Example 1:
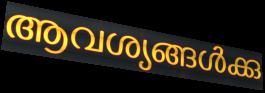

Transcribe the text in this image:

ആവശ്യങ്ങൾക്കു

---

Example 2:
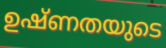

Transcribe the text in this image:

ഉഷ്ണതയുടെ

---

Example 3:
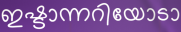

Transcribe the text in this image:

ഇഷ്ടാന്നറിയോടാ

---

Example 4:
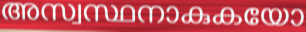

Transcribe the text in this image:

അസ്വസ്ഥനാകുകയോ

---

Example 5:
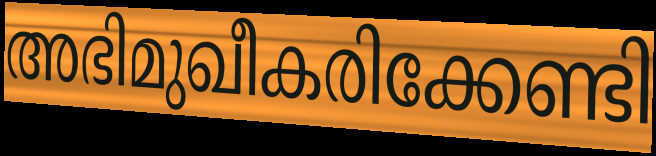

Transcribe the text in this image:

അഭിമുഖീകരിക്കേണ്ടി